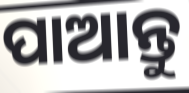
ପାଆନ୍ତୁ